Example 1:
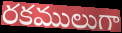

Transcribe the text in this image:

రకములుగా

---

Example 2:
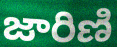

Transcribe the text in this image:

జారిణి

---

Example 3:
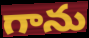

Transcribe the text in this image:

గాను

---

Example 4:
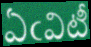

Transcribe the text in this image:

ఏఁవిటీ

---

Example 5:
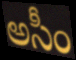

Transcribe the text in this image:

అసీం